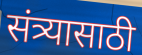
संत्र्यासाठी